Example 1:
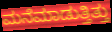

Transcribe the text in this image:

ಮನೆಮಾಡುತ್ತಿತ್ತು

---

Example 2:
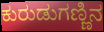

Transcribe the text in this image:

ಕುರುಡುಗಣ್ಣಿನ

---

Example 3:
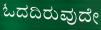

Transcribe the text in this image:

ಓದದಿರುವುದೇ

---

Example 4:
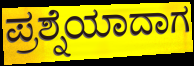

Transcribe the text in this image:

ಪ್ರಶ್ನೆಯಾದಾಗ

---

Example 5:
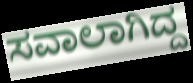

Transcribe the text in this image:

ಸವಾಲಾಗಿದ್ದ